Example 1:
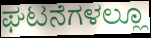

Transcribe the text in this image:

ಘಟನೆಗಳಲ್ಲೂ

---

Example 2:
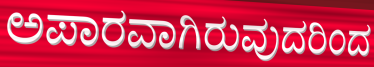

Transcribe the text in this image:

ಅಪಾರವಾಗಿರುವುದರಿಂದ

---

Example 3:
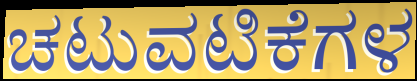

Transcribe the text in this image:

ಚಟುವಟಿಕೆಗಳ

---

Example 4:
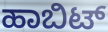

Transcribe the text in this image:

ಹಾಬಿಟ್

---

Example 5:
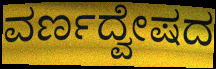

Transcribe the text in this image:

ವರ್ಣದ್ವೇಷದ